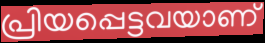
പ്രിയപ്പെട്ടവയാണ്